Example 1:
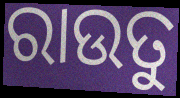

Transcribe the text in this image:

ରାଉତୁ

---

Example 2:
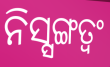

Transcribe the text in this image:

ନିସ୍ସଙ୍ଗତ୍ୱଂ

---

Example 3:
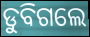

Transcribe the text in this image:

ଡୁବିଗଲେ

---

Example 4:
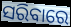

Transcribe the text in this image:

ସରିବାରେ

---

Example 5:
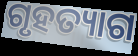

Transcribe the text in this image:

ଗୃହତ୍ୟାଗ